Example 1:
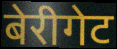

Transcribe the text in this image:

बेरीगेट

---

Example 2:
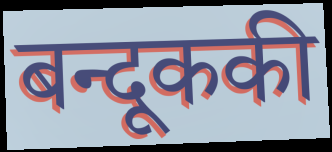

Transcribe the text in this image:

बन्दूककी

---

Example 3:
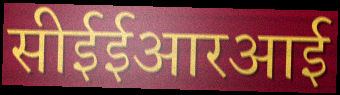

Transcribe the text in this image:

सीईईआरआई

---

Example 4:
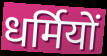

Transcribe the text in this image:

धर्मियों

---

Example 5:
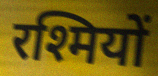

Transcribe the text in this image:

रश्मियों